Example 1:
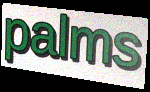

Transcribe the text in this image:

palms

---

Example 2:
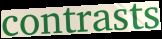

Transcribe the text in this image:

contrasts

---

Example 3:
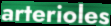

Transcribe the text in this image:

arterioles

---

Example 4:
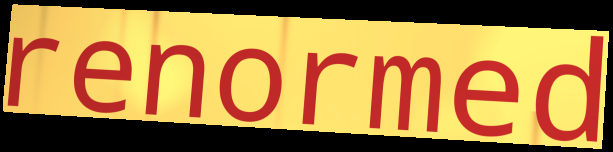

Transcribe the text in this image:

renormed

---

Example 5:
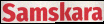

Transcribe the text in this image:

Samskara